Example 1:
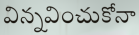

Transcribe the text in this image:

విన్నవించుకోనా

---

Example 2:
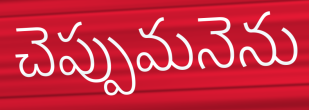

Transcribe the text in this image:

చెప్పుమనెను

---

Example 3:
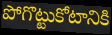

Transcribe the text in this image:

పోగొట్టుకోటానికి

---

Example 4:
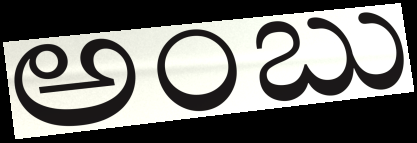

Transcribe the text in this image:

అంబు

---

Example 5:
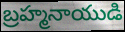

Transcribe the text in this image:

బ్రహ్మనాయుడి